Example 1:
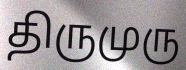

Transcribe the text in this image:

திருமுரு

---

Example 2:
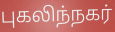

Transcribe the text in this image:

புகலிந்நகர்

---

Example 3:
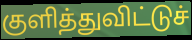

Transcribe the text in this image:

குளித்துவிட்டுச்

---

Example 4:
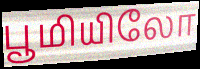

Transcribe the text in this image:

பூமியிலோ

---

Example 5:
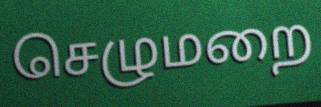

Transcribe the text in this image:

செழுமறை